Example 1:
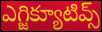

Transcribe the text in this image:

ఎగ్జిక్యూటివ్స్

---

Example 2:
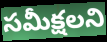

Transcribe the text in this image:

సమీక్షలని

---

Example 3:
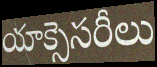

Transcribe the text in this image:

యాక్సెసరీలు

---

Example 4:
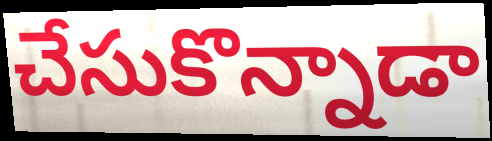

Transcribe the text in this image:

చేసుకొన్నాడా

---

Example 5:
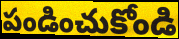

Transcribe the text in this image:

పండించుకోండి